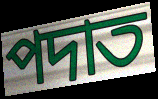
পদাত